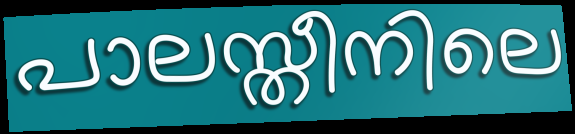
പാലസ്തീനിലെ